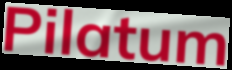
Pilatum